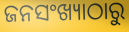
ଜନସଂଖ୍ୟାଠାରୁ